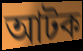
আটক